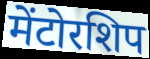
मेंटोरशिप